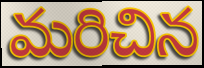
మరిచిన